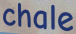
chale